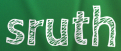
sruth